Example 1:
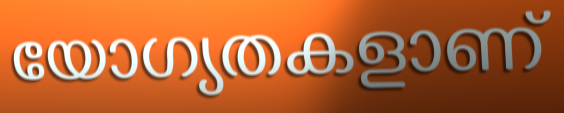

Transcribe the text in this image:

യോഗ്യതകളാണ്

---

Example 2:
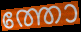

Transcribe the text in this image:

ത്തോ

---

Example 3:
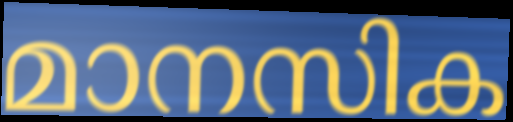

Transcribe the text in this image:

മാനസിക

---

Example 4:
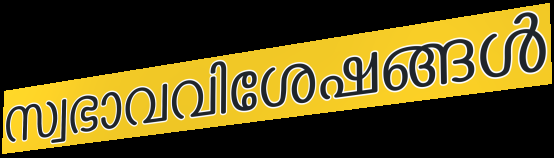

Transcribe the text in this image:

സ്വഭാവവിശേഷങ്ങൾ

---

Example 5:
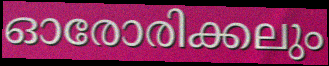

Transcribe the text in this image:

ഓരോരിക്കലും